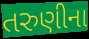
તરુણીના